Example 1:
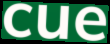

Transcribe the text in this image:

cue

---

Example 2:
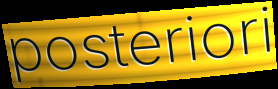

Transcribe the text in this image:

posteriori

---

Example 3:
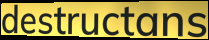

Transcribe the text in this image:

destructans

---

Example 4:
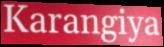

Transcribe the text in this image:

Karangiya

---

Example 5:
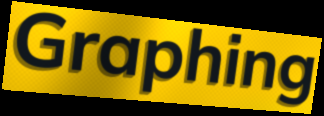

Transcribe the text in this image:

Graphing